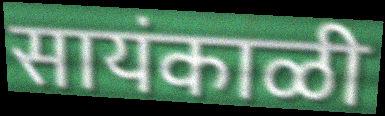
सायंकाळी